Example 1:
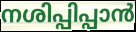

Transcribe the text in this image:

നശിപ്പിപ്പാൻ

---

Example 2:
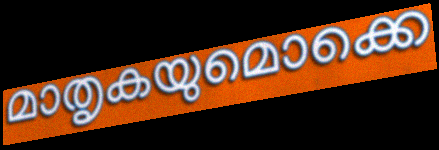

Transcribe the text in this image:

മാതൃകയുമൊക്കെ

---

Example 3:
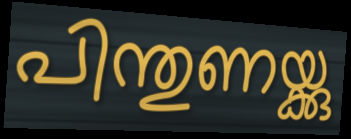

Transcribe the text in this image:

പിന്തുണയ്ക്കു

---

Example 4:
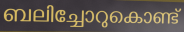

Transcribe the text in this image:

ബലിച്ചോറുകൊണ്ട്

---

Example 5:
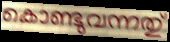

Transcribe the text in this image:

കൊണ്ടുവന്നതു്